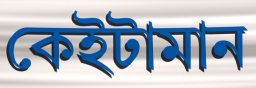
কেইটামান